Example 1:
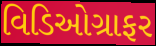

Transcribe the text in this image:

વિડિઓગ્રાફર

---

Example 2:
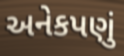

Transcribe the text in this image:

અનેકપણું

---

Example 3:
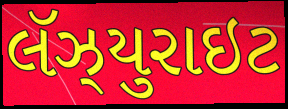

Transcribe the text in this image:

લૅઝ્યુરાઇટ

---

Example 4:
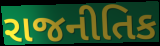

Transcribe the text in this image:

રાજનીતિક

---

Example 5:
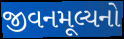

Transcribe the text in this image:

જીવનમૂલ્યનો